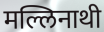
मल्लिनाथी